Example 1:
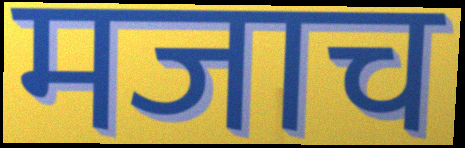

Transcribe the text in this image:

मजाच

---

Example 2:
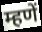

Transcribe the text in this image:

म्हणें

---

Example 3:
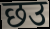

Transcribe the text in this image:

छउ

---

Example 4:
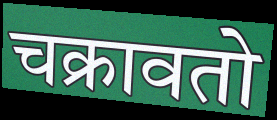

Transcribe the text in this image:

चक्रावतो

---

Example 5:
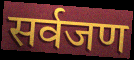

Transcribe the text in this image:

सर्वजण